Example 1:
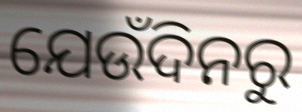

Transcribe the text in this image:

ଯେଉଁଦିନରୁ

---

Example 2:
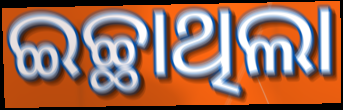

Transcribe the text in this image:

ଇଚ୍ଛାଥିଲା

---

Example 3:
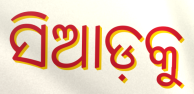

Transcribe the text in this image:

ସିଆଡ଼କୁ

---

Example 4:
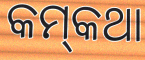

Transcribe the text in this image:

କମ୍‌କଥା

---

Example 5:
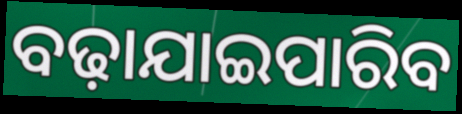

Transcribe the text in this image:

ବଢ଼ାଯାଇପାରିବ